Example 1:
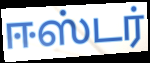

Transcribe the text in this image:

ஈஸ்டர்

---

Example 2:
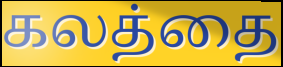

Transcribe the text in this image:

கலத்தை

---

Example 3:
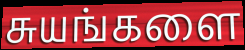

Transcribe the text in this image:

சுயங்களை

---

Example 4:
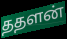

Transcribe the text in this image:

ததளன்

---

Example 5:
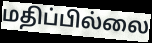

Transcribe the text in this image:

மதிப்பில்லை